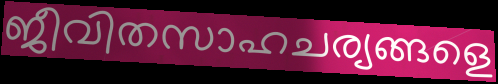
ജീവിതസാഹചര്യങ്ങളെ